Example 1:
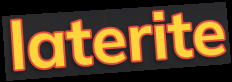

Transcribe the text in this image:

laterite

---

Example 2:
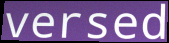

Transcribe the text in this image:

versed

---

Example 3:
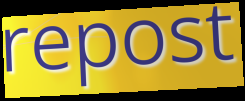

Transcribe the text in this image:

repost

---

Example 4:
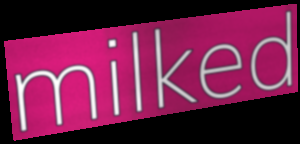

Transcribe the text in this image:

milked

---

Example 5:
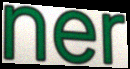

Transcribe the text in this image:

ner